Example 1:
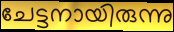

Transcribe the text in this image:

ചേട്ടനായിരുന്നു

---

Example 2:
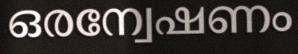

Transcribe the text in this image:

ഒരന്വേഷണം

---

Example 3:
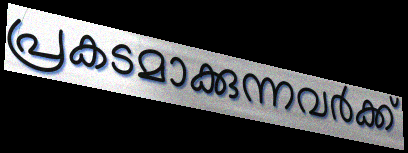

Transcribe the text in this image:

പ്രകടമാക്കുന്നവർക്ക്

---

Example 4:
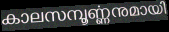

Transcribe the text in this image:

കാലസമ്പൂൎണ്ണനുമായി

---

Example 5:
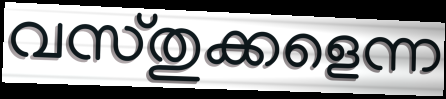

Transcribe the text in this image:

വസ്തുക്കളെന്ന